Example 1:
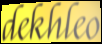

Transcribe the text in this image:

dekhleo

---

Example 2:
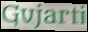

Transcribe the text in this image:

Gujarti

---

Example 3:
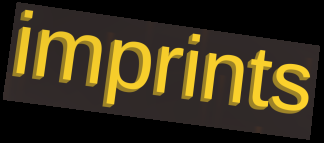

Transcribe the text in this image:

imprints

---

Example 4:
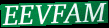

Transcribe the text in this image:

EEVFAM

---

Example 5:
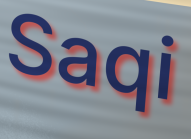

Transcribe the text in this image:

Saqi